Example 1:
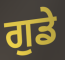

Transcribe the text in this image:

ਗੁਡੇ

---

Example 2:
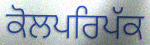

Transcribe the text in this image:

ਕੋਲਪਰਿਪੱਕ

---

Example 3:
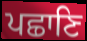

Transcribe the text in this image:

ਪਛਾਣਿ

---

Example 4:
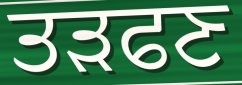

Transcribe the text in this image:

ਤੜਫਣ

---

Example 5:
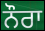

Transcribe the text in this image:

ਨੌਰਾ